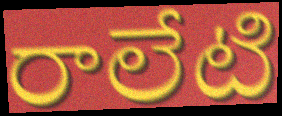
రాలేటి